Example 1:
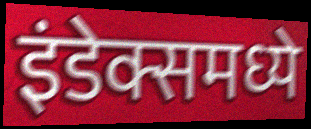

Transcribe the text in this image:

इंडेक्समध्ये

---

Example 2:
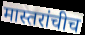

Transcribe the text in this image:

मास्तरांचीच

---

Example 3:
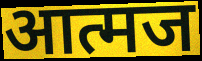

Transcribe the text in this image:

आत्मज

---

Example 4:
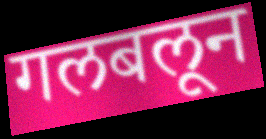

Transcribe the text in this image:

गलबलून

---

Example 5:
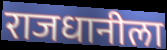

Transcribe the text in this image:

राजधानीला